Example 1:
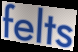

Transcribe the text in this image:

felts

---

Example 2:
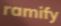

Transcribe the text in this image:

ramify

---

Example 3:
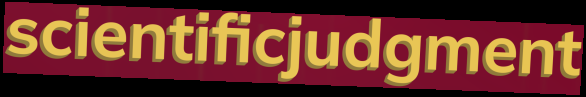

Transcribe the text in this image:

scientificjudgment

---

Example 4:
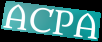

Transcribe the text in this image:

ACPA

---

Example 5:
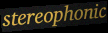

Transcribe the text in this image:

stereophonic